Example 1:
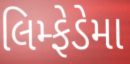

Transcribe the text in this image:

લિમ્ફેડેમા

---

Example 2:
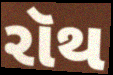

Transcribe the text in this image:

રૉથ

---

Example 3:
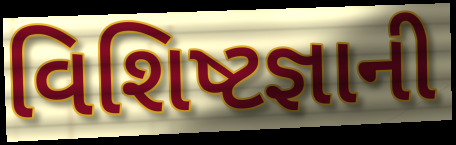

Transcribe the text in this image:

વિશિષ્ટજ્ઞાની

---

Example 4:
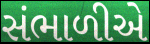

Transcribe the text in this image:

સંભાળીએ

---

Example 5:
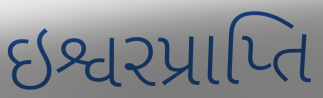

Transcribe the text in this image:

ઇશ્વરપ્રાપ્તિ